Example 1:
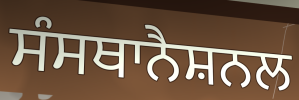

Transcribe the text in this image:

ਸੰਸਥਾਨੈਸ਼ਨਲ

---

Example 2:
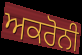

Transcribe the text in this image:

ਅਕਰੋਨੀ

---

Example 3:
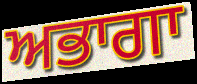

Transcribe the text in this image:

ਅਭਾਗਾ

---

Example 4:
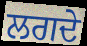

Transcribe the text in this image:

ਲਗਦੇ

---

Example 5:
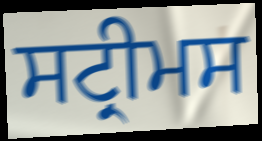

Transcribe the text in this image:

ਸਟ੍ਰੀਮਸ